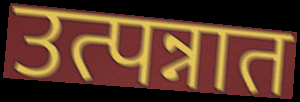
उत्पन्नात